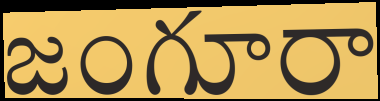
జంగూరా